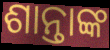
ଶାନ୍ତାଙ୍କ